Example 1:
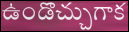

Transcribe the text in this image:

ఉండొచ్చుగాక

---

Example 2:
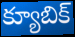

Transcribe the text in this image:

క్యూబిక్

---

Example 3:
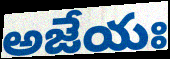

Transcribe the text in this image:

అజేయః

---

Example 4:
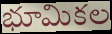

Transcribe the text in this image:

భూమికల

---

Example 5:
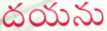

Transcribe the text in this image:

దయను